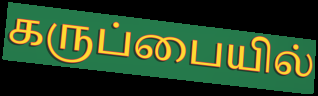
கருப்பையில்